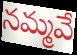
నమ్మవే